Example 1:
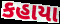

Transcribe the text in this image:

કહાયા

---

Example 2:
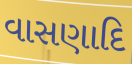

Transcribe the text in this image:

વાસણાદિ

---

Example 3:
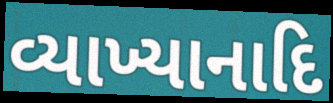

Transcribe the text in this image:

વ્યાખ્યાનાદિ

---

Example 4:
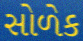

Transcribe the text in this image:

સોળેક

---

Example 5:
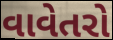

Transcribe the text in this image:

વાવેતરો